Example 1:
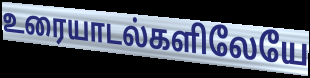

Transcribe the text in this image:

உரையாடல்களிலேயே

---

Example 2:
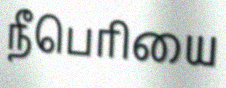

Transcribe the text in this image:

நீபெரியை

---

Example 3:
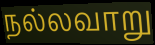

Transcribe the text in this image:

நல்லவாறு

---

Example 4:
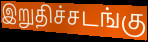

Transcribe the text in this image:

இறுதிச்சடங்கு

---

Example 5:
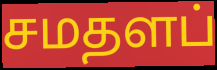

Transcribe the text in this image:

சமதளப்